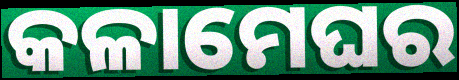
କଳାମେଘର